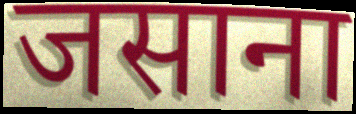
जसाना